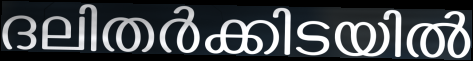
ദലിതർക്കിടയിൽ